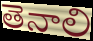
తెనాలి